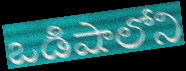
ఒడిషాలోని